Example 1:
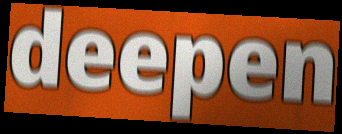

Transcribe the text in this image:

deepen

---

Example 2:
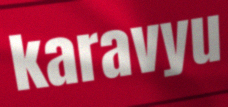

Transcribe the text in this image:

karavyu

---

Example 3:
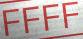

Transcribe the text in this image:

FFFF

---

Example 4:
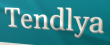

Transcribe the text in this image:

Tendlya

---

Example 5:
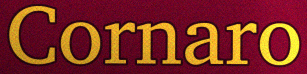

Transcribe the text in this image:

Cornaro